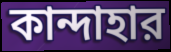
কান্দাহার